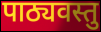
पाठ्यवस्तु